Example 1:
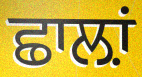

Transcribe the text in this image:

ਛਾਲ਼ਾਂ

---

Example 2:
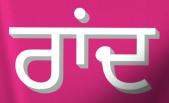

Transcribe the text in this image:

ਰਾਂਦ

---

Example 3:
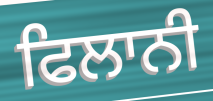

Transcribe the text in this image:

ਫਿਲਾਨੀ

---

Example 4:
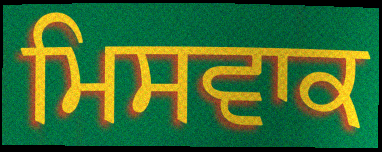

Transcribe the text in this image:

ਮਿਸਵਾਕ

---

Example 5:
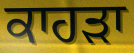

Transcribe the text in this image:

ਕਾਹੜਾ